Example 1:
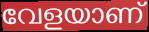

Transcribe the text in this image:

വേളയാണ്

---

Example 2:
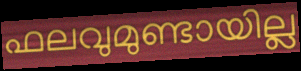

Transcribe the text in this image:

ഫലവുമുണ്ടായില്ല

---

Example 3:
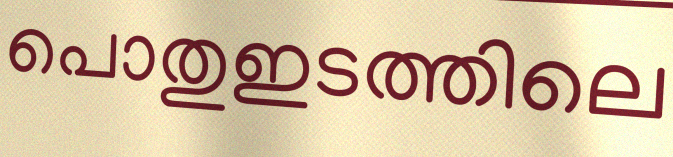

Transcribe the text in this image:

പൊതുഇടത്തിലെ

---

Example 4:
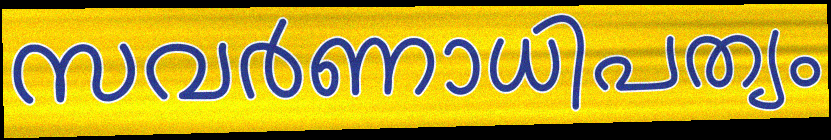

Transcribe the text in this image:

സവർണാധിപത്യം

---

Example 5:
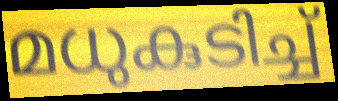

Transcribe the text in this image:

മധുകുടിച്ച്